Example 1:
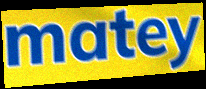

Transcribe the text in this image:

matey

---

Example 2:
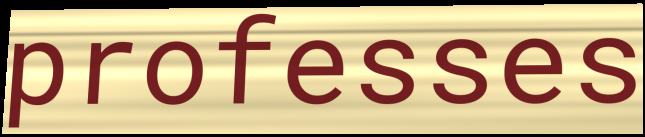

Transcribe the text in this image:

professes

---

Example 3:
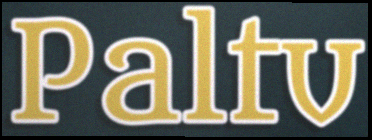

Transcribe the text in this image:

Paltu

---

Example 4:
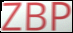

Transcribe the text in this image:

ZBP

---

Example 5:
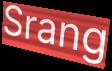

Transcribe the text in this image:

Srang